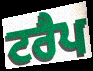
ਟਰੈਪ